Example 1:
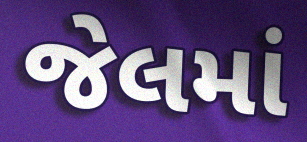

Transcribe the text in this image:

જેલમાં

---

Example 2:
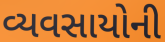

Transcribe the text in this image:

વ્યવસાયોની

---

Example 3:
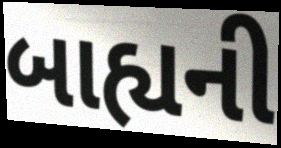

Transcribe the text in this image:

બાહ્યની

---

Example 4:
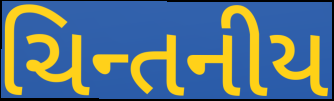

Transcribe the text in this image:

ચિન્તનીય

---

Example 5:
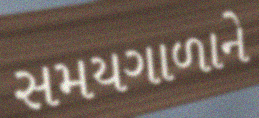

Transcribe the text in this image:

સમયગાળાને